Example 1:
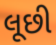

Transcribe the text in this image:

લૂછી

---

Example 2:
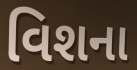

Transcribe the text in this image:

વિશના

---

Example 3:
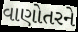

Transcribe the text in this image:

વાણોતરને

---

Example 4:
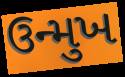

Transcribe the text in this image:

ઉન્મુખ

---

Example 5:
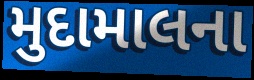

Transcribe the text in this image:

મુદામાલના